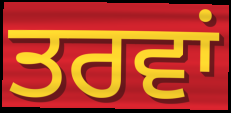
ਤਰਵਾਂ